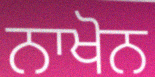
ਨਾਖੋਨ